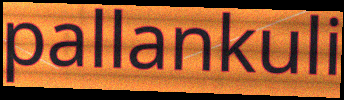
pallankuli